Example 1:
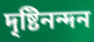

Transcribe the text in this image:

দৃষ্টিনন্দন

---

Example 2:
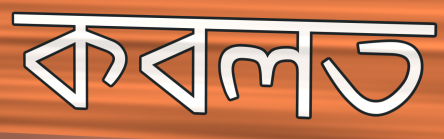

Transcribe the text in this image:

কবলত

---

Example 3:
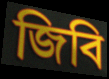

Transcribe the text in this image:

জিবি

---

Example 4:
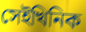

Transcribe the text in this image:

সেইখিনিক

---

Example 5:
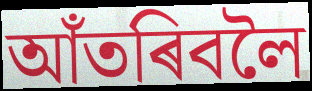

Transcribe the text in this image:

আঁতৰিবলৈ